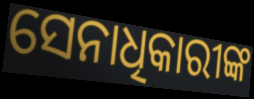
ସେନାଧିକାରୀଙ୍କ